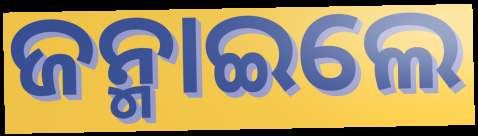
ଜନ୍ମାଇଲେ